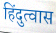
हिंदुत्वास